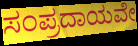
ಸಂಪ್ರದಾಯವೇ